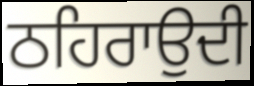
ਠਹਿਰਾਉਦੀ